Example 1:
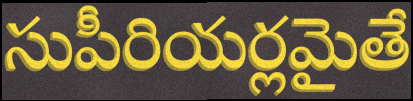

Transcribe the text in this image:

సుపీరియర్లమైతే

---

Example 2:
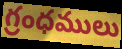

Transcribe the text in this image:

గ్రంధములు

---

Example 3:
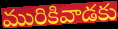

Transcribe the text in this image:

మురికివాడకు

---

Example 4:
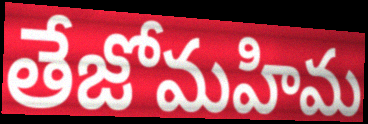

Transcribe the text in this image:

తేజోమహిమ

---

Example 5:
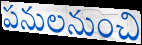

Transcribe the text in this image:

పనులనుంచి